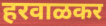
हरवाळकर